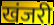
खंजरी